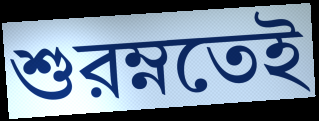
শুরম্নতেই